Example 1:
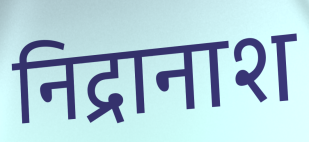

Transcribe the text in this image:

निद्रानाश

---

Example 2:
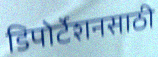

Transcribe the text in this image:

डिपोर्टेशनसाठी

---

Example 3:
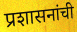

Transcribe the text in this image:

प्रशासनांची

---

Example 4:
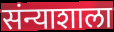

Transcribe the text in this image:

संन्याशाला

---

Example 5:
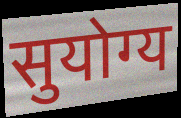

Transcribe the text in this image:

सुयोग्य